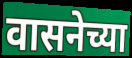
वासनेच्या